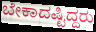
ಬೇಕಾದಷ್ಟಿದ್ದರು